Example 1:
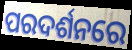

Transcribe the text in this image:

ପରଦର୍ଶନରେ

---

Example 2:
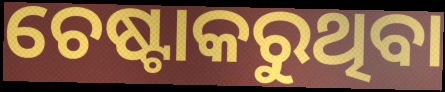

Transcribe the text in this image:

ଚେଷ୍ଟାକରୁଥିବା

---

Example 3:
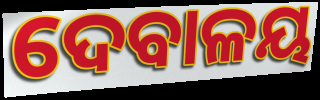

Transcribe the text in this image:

ଦେବାଳୟ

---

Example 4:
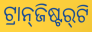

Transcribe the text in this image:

ଟ୍ରାନ୍‌ଜିଷ୍ଟର୍‌ଟି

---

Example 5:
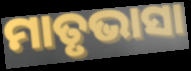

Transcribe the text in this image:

ମାତୃଭାସା